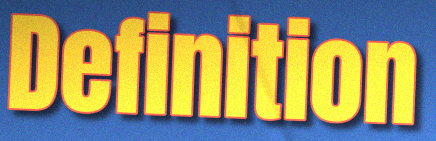
Definition